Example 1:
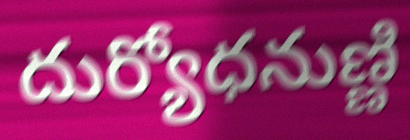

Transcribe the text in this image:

దుర్యోధనుణ్ణి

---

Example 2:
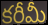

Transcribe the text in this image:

కరీమీ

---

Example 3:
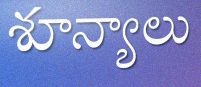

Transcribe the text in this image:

శూన్యాలు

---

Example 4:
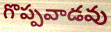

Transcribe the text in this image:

గొప్పవాడవు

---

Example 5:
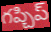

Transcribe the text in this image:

గప్చిప్